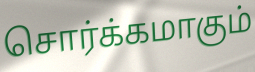
சொர்க்கமாகும்